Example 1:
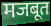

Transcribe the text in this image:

मजबूत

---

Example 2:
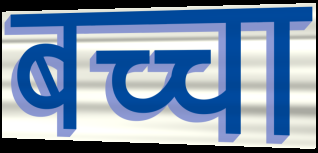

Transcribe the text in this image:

बच्चा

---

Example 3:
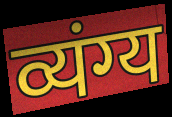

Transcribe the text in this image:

व्‍यंग्‍य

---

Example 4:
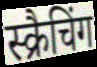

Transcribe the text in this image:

स्क्रैचिंग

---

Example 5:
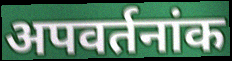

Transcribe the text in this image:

अपवर्तनांक